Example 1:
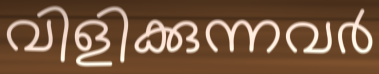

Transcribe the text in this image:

വിളിക്കുന്നവർ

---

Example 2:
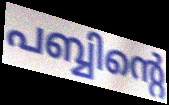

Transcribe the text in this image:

പബ്ബിന്റെ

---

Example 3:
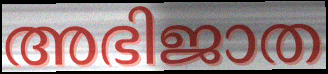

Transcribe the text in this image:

അഭിജാത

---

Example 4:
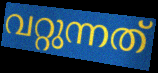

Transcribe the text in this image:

വറ്റുന്നത്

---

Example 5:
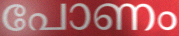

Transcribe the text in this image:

പോണം